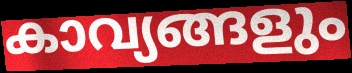
കാവ്യങ്ങളും